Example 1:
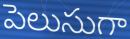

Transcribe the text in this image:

పెలుసుగా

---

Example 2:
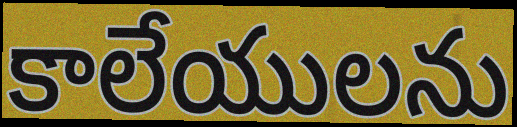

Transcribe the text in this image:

కాలేయులను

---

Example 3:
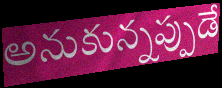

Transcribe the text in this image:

అనుకున్నప్పుడే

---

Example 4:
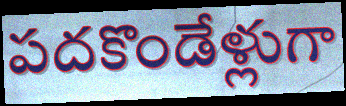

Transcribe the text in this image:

పదకొండేళ్లుగా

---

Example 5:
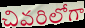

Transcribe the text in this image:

చివరిలోగా